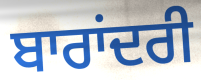
ਬਾਰਾਂਦਰੀ